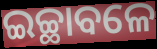
ଇଚ୍ଛାବଳେ